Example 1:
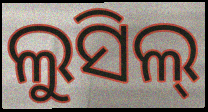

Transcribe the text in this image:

ଲୁସିଲ୍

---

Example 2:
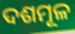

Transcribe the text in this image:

ଦଶମୂଳ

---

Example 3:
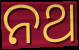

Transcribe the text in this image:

ନଥ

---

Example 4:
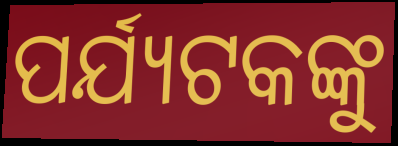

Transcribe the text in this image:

ପର୍ଯ୍ୟଟକଙ୍କୁ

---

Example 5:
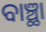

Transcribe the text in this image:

ବାଞ୍ଛା